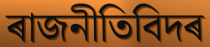
ৰাজনীতিবিদৰ